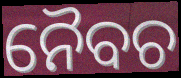
ନୈବଚ